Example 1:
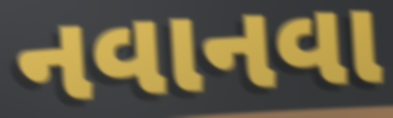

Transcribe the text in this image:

નવાનવા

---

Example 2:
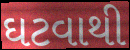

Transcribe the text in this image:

ઘટવાથી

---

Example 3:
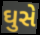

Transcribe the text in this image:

ઘુસે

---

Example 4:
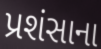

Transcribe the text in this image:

પ્રશંસાના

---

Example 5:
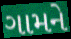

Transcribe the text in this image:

ગામને